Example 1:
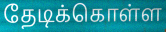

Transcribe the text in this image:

தேடிக்கொள்ள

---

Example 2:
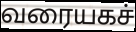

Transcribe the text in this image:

வரையகச்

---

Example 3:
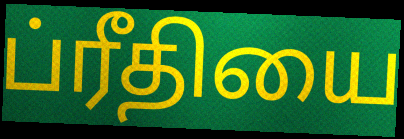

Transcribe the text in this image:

ப்ரீதியை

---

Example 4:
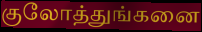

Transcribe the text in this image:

குலோத்துங்கனை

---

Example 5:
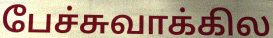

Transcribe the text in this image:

பேச்சுவாக்கில